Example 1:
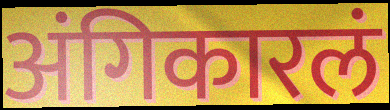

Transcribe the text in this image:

अंगिकारलं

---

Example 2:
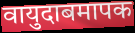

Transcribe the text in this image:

वायुदाबमापक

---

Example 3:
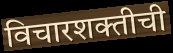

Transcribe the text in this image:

विचारशक्तीची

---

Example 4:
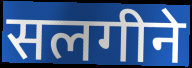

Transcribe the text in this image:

सलगीने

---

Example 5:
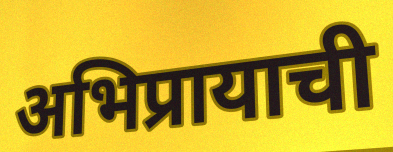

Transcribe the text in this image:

अभिप्रायाची